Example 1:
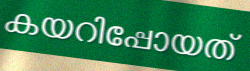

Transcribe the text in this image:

കയറിപ്പോയത്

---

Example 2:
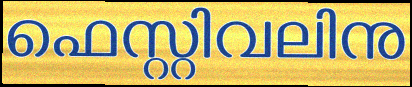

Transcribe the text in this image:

ഫെസ്റ്റിവലിനു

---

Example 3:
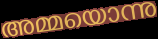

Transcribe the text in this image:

അമ്മയൊന്നു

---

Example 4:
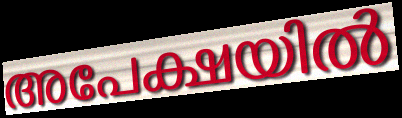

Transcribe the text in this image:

അപേക്ഷയിൽ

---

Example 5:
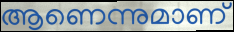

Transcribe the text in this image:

ആണെന്നുമാണ്